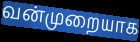
வன்முறையாக